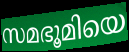
സമഭൂമിയെ